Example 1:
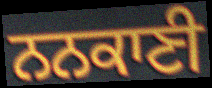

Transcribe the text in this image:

ਨਨਕਾਣੀ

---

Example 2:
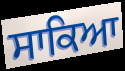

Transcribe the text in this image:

ਸਾਕਿਆ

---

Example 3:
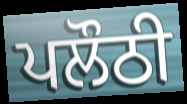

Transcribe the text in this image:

ਪਲੌਠੀ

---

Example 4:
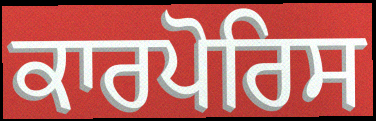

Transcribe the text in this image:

ਕਾਰਪੋਰਿਸ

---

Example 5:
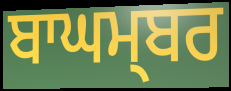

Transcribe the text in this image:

ਬਾਘਮ੍ਬਰ